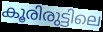
കൂരിരുട്ടിലെ